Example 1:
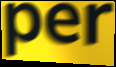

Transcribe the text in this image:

per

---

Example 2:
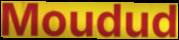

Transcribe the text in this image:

Moudud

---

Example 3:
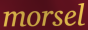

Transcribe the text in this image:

morsel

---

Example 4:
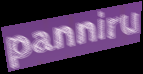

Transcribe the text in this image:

panniru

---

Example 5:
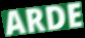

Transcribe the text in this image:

ARDE